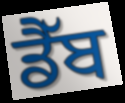
ਡੈੱਬ